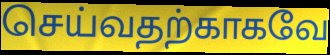
செய்வதற்காகவே